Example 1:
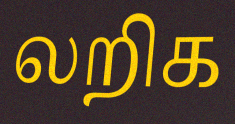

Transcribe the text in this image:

லறிக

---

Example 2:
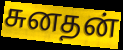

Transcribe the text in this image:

சுனதன்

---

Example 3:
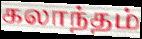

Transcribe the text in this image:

கலாந்தம்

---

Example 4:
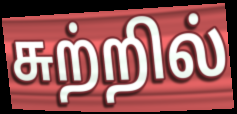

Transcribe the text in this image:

சுற்றில்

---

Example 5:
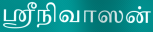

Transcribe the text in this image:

ஸ்ரீநிவாஸன்